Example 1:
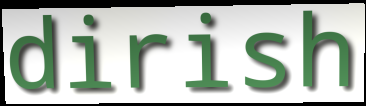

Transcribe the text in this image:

dirish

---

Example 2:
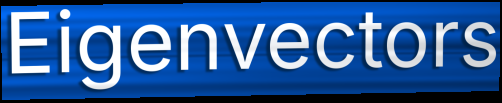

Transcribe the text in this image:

Eigenvectors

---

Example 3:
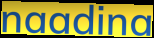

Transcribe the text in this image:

naadina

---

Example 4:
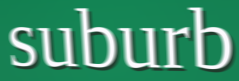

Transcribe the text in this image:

suburb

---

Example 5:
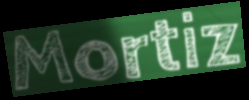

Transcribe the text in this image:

Mortiz